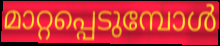
മാറ്റപ്പെടുമ്പോൾ